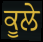
ਕੂਲੇ